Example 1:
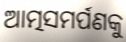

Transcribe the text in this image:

ଆତ୍ମସମର୍ପଣକୁ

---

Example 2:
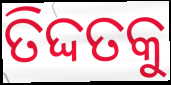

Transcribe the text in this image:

ତିଦ୍ଦତକୁ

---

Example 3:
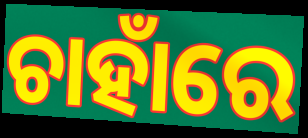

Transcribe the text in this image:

ଚାହାଁରେ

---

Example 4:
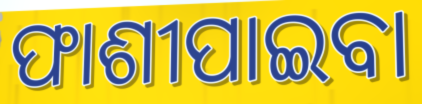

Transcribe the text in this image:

ଫାଶୀପାଇବା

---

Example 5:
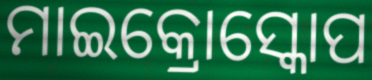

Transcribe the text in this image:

ମାଇକ୍ରୋସ୍କୋପ